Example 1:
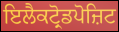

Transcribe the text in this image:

ਇਲੈਕਟ੍ਰੋਡਪੋਜ਼ਿਟ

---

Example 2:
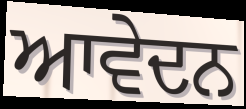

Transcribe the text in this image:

ਆਵੇਦਨ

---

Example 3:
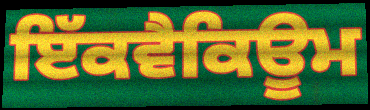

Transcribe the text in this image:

ਇੱਕਵੈਕਿਊਮ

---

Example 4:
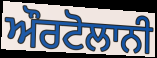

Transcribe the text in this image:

ਔਰਟੋਲਾਨੀ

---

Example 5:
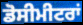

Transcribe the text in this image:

ਡੋਸੀਮੀਟਰਾਂ